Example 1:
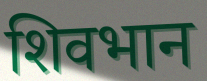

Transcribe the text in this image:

शिवभान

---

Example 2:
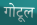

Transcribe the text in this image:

गोटूल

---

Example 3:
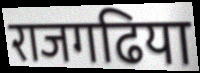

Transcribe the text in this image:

राजगढिया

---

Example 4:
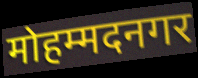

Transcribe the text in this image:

मोहम्मदनगर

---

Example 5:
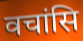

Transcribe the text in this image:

वचांसि